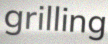
grilling